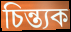
চিন্ত্যক